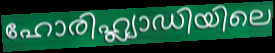
ഹോരിഹ്ല്യാഡിയിലെ